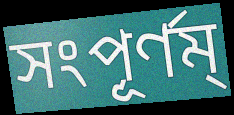
সংপূর্ণম্